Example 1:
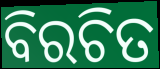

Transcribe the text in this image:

ବିରଚିତ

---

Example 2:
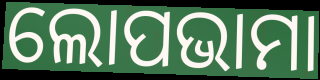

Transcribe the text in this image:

ଲୋପଭାମା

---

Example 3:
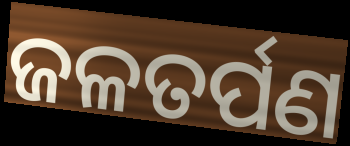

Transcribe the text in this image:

ଜଳତର୍ପଣ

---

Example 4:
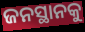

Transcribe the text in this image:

ଜନସ୍ଥାନକୁ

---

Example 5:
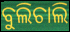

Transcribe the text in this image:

ବୁଲିଚାଲି